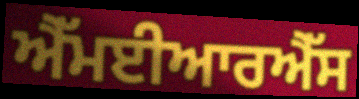
ਐੱਮਈਆਰਐੱਸ